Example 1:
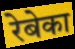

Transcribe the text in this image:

रेबेका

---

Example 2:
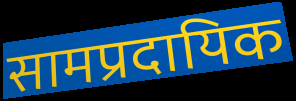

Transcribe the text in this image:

सामप्रदायिक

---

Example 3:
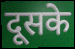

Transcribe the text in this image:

दूसके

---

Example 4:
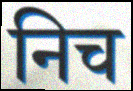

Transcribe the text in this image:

निच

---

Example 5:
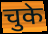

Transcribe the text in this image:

चुके